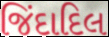
જિંદાદિલ